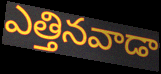
ఎత్తినవాడా